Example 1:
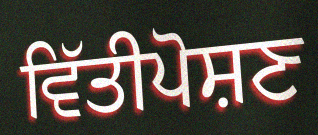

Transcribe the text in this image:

ਵਿੱਤੀਪੋਸ਼ਣ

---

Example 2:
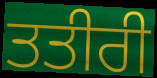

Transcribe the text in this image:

ਤਤੀਰੀ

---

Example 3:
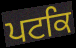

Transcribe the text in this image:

ਪਟਕਿ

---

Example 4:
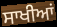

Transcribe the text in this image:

ਸਾਖੀਆਂ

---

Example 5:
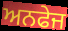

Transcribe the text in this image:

ਅਨਫੇਜ